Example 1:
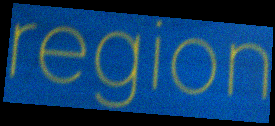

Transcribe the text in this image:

region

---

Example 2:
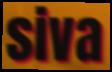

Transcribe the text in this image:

siva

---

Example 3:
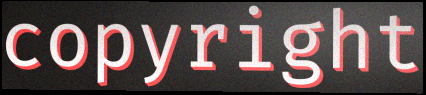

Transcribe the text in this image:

copyright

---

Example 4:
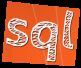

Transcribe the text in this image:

sql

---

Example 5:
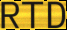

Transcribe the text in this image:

RTD